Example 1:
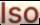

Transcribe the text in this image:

Iso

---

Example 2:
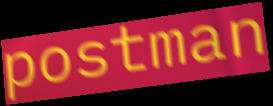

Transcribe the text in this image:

postman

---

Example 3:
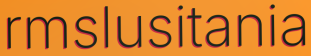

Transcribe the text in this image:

rmslusitania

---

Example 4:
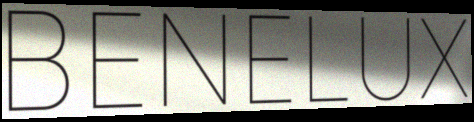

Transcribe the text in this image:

BENELUX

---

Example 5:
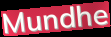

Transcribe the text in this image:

Mundhe